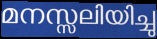
മനസ്സലിയിച്ചു